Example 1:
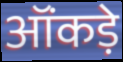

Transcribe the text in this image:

ऑंकड़े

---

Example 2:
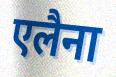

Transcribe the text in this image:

एलैना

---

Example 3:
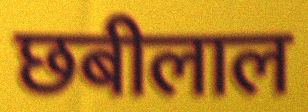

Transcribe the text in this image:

छबीलाल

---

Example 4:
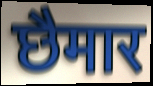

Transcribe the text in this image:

छैमार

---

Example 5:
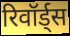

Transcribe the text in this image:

रिवॉर्ड्स